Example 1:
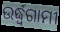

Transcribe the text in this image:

ଉର୍ଦ୍ଧ୍ୱଗାମୀ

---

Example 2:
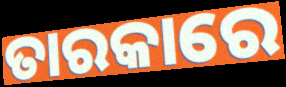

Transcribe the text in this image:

ତାରକାରେ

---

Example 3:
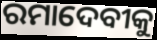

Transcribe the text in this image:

ରମାଦେବୀକୁ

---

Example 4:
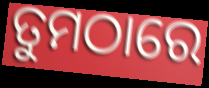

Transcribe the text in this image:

ତୁମଠାରେ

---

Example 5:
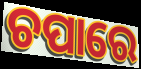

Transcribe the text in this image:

ଚପାରେ